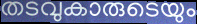
തടവുകാരുടെയും